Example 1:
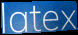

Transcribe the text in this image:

latex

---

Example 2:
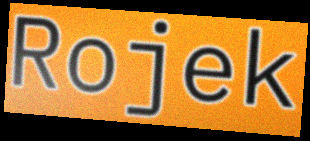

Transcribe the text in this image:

Rojek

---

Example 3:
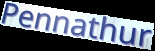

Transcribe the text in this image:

Pennathur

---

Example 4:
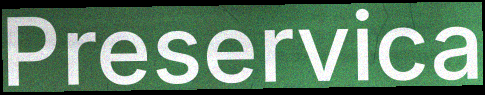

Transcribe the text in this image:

Preservica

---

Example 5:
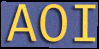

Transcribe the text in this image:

AOI